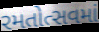
રમતોત્સવમાં